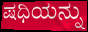
ಷಧಿಯನ್ನು